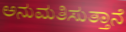
ಅನುಮತಿಸುತ್ತಾನೆ